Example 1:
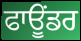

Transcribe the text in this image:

ਫਾਊਂਡਰ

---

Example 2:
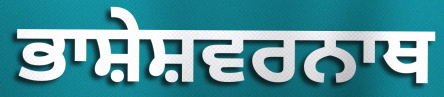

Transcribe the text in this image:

ਭਾਸ਼ੇਸ਼ਵਰਨਾਥ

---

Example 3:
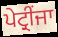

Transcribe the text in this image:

ਪੇਟ੍ਰੀਂਜਾ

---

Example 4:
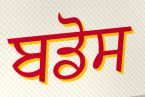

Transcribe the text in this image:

ਬਡੋਸ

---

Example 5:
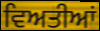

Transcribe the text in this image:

ਵਿਅਤੀਆਂ